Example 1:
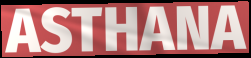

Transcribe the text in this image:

ASTHANA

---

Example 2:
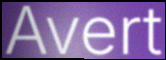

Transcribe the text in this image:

Avert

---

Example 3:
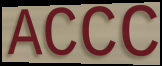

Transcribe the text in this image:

ACCC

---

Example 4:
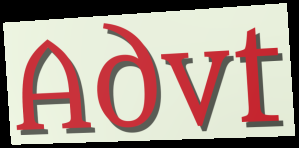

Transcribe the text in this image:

Advt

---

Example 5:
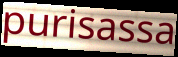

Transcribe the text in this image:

purisassa